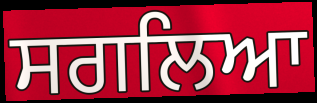
ਸਗਲਿਆ